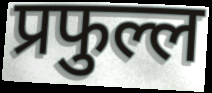
प्रफुल्ल